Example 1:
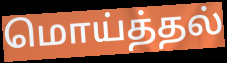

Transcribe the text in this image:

மொய்த்தல்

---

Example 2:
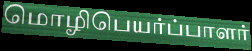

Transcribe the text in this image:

மொழிபெயர்ப்பாளர்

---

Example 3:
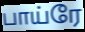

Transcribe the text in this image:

பாய்ரே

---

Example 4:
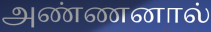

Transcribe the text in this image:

அண்ணனால்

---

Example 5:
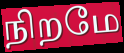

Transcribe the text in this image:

நிறமே